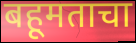
बहूमताचा